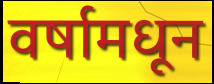
वर्षामधून